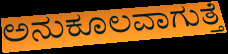
ಅನುಕೂಲವಾಗುತ್ತೆ